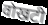
वोखटी